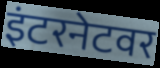
इंटरनेटवर